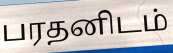
பரதனிடம்